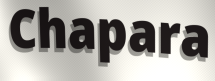
Chapara